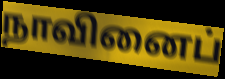
நாவினைப்